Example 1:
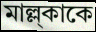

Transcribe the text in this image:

মাল্ল্কাকে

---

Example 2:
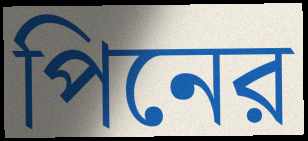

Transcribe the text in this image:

পিনের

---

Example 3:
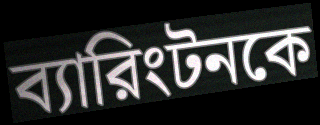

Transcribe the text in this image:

ব্যারিংটনকে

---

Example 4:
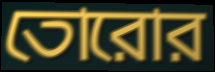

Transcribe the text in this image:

তোরোর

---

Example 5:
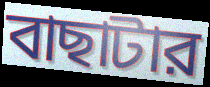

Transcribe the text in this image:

বাছাটার